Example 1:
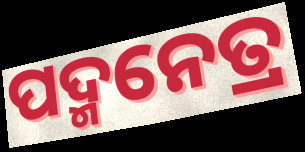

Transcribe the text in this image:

ପଦ୍ମନେତ୍ର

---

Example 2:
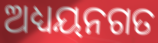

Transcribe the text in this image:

ଅଧ୍ୟୟନଗତ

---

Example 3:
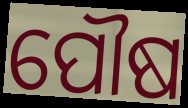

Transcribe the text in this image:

ପୌଷ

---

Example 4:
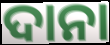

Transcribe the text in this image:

ଦାନା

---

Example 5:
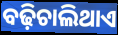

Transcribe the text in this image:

ବଢ଼ିଚାଲିଥାଏ